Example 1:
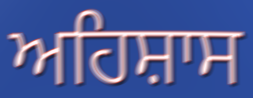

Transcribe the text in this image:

ਅਹਿਸ਼ਾਸ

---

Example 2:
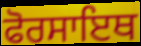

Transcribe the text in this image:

ਫੋਰਸਾਇਥ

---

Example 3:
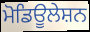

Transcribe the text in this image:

ਮੋਡਿਊਲੇਸ਼ਨ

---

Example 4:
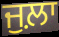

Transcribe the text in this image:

ਜੁਲ਼ਾ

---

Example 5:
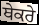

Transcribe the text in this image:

ਥੇਕਰੇ